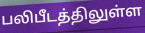
பலிபீடத்திலுள்ள